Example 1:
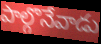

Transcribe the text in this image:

పాల్గొనేవాడు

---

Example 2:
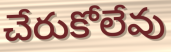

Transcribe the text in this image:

చేరుకోలేవు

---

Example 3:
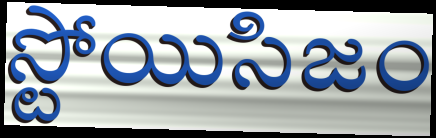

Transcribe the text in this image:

స్టోయిసిజం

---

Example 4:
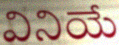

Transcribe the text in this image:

వినియే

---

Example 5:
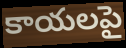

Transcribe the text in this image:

కాయలపై